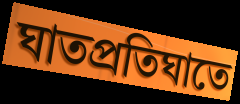
ঘাতপ্রতিঘাতে